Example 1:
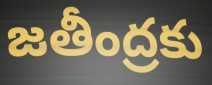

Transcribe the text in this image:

జతీంద్రకు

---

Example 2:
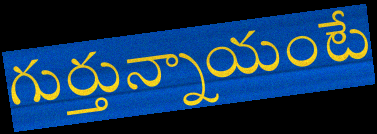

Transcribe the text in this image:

గుర్తున్నాయంటే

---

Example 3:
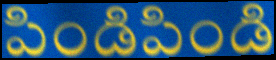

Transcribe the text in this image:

పిండిపిండి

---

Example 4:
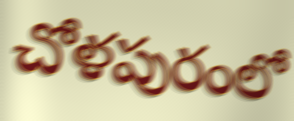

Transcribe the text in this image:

చోళపురంలో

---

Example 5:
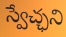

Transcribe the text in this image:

స్వేచ్ఛని